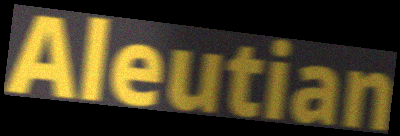
Aleutian